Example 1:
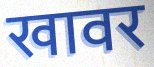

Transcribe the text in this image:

खावर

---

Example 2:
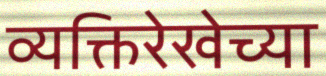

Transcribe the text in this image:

व्यक्तिरेखेच्या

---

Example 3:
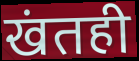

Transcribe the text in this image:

खंतही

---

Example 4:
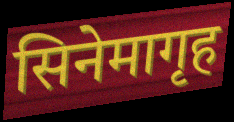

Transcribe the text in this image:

सिनेमागृह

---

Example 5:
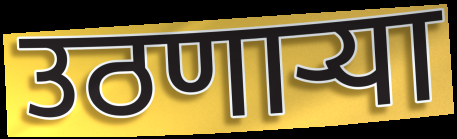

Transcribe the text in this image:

उठणाऱ्या